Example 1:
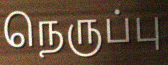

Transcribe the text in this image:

நெருப்பு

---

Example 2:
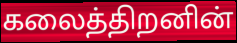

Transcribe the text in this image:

கலைத்திறனின்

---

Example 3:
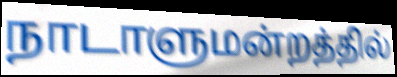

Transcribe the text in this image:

நாடாளுமன்றத்தில்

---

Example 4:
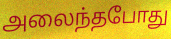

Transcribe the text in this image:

அலைந்தபோது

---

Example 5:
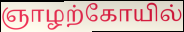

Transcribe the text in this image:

ஞாழற்கோயில்